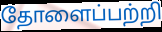
தோளைப்பற்றி